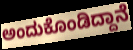
ಅಂದುಕೊಂಡಿದ್ದಾನೆ